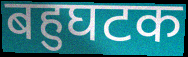
बहुघटक